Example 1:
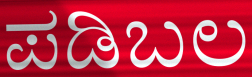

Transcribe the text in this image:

ಪಡಿಬಲ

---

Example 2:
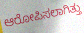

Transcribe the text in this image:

ಆರೋಪಿಸಲಾಗಿತ್ತು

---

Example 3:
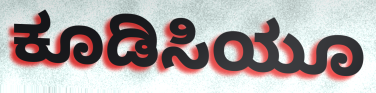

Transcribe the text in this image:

ಕೂಡಿಸಿಯೂ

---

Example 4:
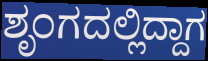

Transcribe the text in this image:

ಶೃಂಗದಲ್ಲಿದ್ದಾಗ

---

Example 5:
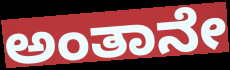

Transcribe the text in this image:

ಅಂತಾನೇ